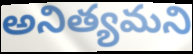
అనిత్యమని